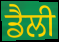
ਡੈਲੀ